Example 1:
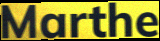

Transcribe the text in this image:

Marthe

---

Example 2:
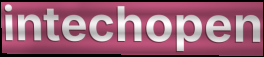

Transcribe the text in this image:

intechopen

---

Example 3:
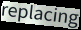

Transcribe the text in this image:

replacing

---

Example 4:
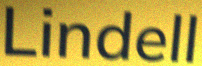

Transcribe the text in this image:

Lindell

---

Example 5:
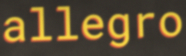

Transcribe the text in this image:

allegro